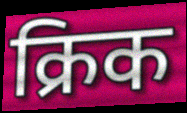
क्रिक